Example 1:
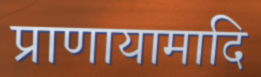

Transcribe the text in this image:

प्राणायामादि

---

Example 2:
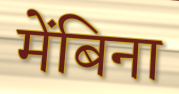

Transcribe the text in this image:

मेंबिना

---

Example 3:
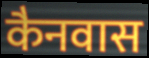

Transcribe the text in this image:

कैनवास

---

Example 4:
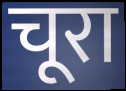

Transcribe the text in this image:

चूरा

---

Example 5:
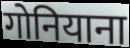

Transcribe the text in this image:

गोनियाना